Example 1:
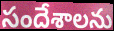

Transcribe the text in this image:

సందేశాలను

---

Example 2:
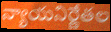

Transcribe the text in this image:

న్యాయనిర్ణేతల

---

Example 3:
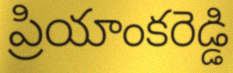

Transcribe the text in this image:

ప్రియాంకరెడ్డి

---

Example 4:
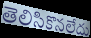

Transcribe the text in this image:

తెలిసికొనలేదు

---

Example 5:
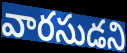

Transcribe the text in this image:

వారసుడని